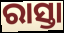
ରାସ୍ତା